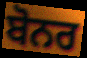
ਬੋਨਰ